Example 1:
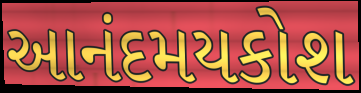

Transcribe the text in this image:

આનંદમયકોશ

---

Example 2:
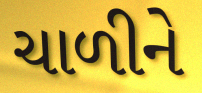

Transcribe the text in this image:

ચાળીને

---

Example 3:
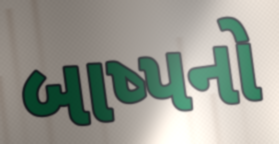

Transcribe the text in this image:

બાષ્પનો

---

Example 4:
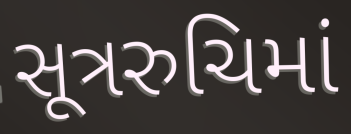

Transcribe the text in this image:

સૂત્રરુચિમાં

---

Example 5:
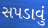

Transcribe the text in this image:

સપડાવું